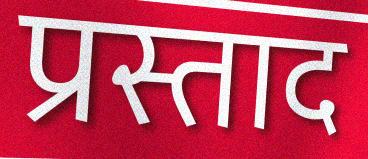
प्रस्ताद